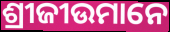
ଶ୍ରୀଜୀଉମାନେ